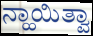
ನ್ಹಾಯಿತ್ವಾ